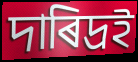
দাৰিদ্ৰই